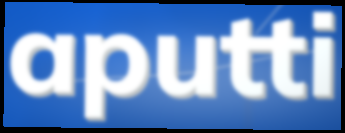
aputti